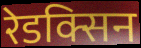
रेडक्सिन